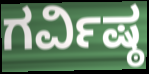
ಗರ್ವಿಷ್ಠ